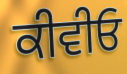
ਕੀਵੀਓ